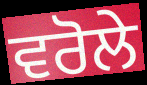
ਵਰੋਲੇ